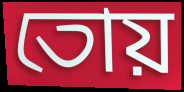
তোয়